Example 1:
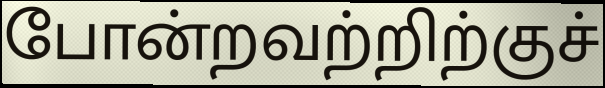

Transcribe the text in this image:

போன்றவற்றிற்குச்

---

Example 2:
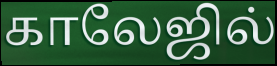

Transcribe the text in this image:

காலேஜில்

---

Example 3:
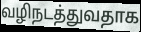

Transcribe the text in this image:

வழிநடத்துவதாக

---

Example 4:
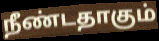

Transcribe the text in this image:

நீண்டதாகும்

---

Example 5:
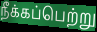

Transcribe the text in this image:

நீக்கப்பெற்று